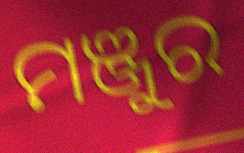
ମଞ୍ଜୁର